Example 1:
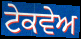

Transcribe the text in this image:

ਟੇਕਵੇਅ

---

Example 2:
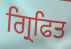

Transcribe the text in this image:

ਗ੍ਰਿਫਿਤ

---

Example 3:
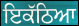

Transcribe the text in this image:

ਇਕੱਠਿਆ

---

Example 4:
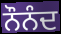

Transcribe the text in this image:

ਨੌਨੰਦ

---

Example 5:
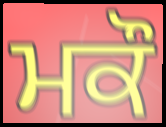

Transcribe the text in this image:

ਮਕੌ